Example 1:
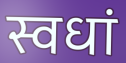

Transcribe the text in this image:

स्वधां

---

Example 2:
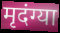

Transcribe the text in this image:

मृदंग्या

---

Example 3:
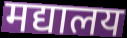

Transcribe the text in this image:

मद्यालय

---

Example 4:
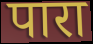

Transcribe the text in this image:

पारा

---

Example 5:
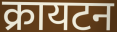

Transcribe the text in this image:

क्रायटन